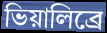
ভিয়ালিব্রে